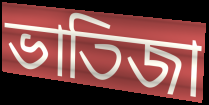
ভাতিজা